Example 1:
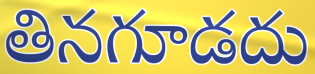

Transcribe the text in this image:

తినగూడదు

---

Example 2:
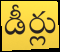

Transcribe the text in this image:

డీర్లు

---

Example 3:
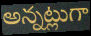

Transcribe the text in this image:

అన్నట్లుగా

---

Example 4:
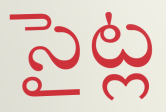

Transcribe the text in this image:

సైట్ల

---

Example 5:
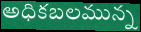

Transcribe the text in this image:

అధికబలమున్న